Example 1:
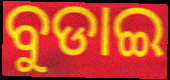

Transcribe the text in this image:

ବୁଡାଇ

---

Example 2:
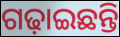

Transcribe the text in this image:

ଗଢ଼ାଇଛନ୍ତି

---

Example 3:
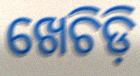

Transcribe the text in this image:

ଖେଚିଡ଼ି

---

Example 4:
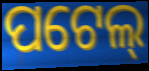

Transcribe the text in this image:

ପଟେଲ୍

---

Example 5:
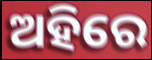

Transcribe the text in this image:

ଅହିରେ